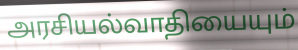
அரசியல்வாதியையும்